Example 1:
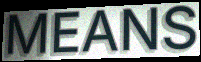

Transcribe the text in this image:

MEANS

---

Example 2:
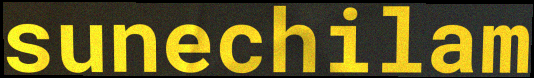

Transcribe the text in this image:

sunechilam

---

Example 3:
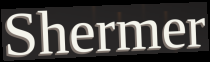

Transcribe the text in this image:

Shermer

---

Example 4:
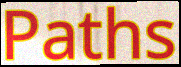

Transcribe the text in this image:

Paths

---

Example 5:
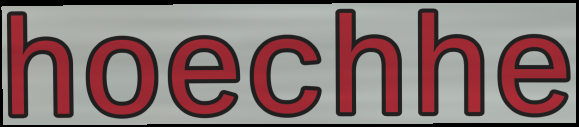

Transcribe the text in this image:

hoechhe